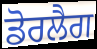
ਡੋਰਲੈਗ